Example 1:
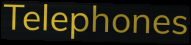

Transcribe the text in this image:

Telephones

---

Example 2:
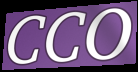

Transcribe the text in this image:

CCO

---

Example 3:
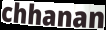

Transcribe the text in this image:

chhanan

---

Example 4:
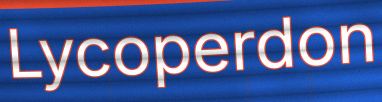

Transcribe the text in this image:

Lycoperdon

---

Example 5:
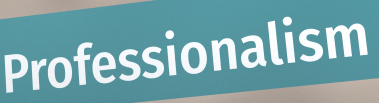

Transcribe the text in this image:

Professionalism